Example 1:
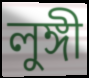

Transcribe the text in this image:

লুঙ্গী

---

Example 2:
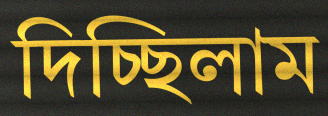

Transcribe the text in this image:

দিচ্ছিলাম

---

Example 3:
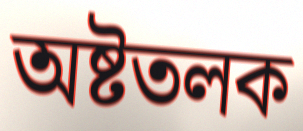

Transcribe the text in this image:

অষ্টতলক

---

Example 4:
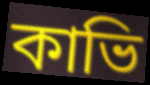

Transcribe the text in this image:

কাভি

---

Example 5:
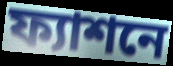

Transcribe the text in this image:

ফ্যাশনে